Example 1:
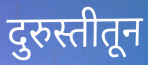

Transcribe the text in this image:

दुरुस्तीतून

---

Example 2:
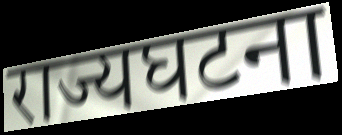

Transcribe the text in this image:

राज्यघटना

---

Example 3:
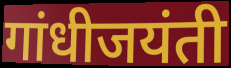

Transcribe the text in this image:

गांधीजयंती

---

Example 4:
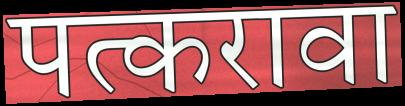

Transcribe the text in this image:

पत्करावा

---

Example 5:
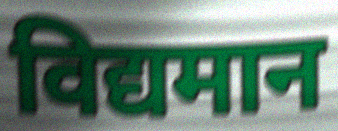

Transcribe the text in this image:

विद्यमान